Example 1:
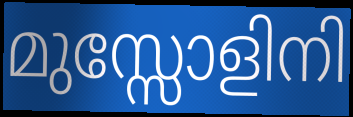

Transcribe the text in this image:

മുസ്സോളിനി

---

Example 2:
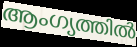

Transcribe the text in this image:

ആംഗ്യത്തിൽ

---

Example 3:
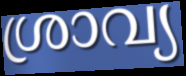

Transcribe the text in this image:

ശ്രാവ്യ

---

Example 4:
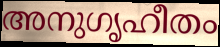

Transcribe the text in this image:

അനുഗൃഹീതം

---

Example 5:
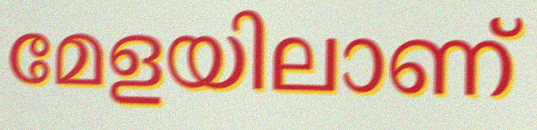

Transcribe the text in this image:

മേളയിലാണ്